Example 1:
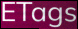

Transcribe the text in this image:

ETags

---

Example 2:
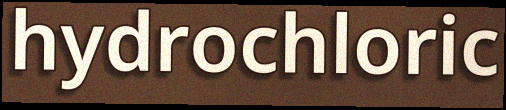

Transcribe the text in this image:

hydrochloric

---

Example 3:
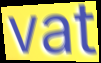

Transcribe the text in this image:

vat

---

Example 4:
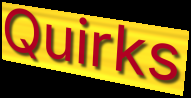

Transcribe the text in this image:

Quirks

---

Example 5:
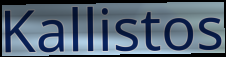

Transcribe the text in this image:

Kallistos